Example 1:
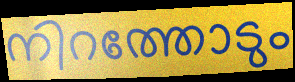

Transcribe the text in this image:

നിറത്തോടും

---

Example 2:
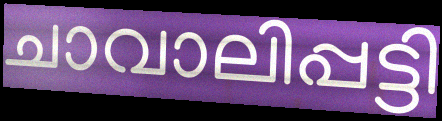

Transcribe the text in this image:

ചാവാലിപ്പട്ടി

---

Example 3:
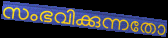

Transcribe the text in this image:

സംഭവിക്കുന്നതോ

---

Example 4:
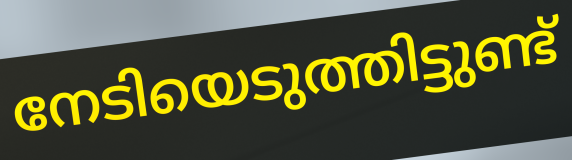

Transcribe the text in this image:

നേടിയെടുത്തിട്ടുണ്ട്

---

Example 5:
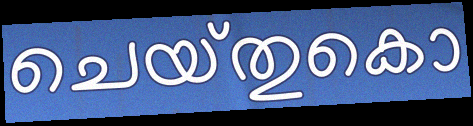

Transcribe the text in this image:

ചെയ്‌തുകൊ